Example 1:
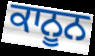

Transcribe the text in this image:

ਕਾਨੂਨ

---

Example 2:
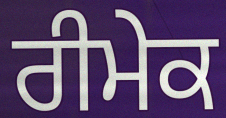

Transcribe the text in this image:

ਰੀਮੇਕ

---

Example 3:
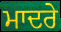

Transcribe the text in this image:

ਮਾਦਰੇ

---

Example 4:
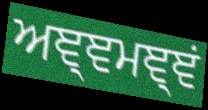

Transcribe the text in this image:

ਅਞ੍ਞਮਞ੍ਞਂ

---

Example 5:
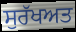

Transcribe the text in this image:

ਸੁਰੱਖਅਤ